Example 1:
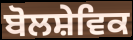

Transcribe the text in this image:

ਬੋਲਸ਼ੇਵਿਕ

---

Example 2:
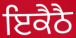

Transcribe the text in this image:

ਇਕੈਠੈ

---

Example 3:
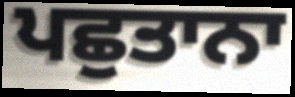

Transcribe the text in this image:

ਪਛੁਤਾਨਾ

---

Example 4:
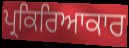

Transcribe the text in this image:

ਪ੍ਰਕਿਰਿਆਕਾਰ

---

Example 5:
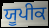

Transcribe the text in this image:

ਯੂਪੀਕ